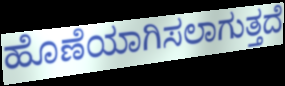
ಹೊಣೆಯಾಗಿಸಲಾಗುತ್ತದೆ